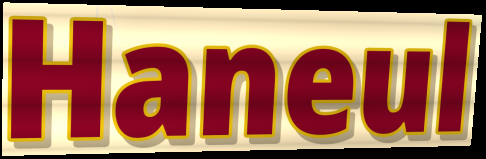
Haneul